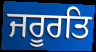
ਜਰੂਰਤਿ